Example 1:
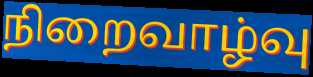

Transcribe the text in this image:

நிறைவாழ்வு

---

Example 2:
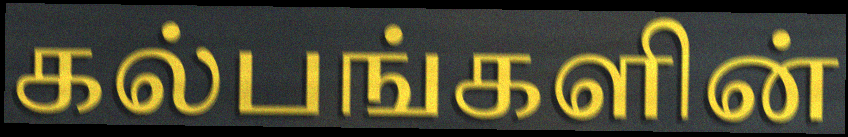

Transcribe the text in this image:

கல்பங்களின்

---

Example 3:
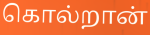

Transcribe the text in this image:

கொல்றான்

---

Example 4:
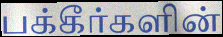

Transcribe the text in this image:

பக்கீர்களின்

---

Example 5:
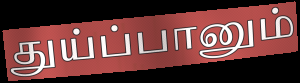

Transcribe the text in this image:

துய்ப்பானும்